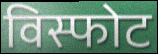
विस्फोट